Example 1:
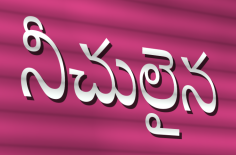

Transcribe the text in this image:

నీచులైన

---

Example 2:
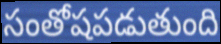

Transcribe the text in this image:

సంతోషపడుతుంది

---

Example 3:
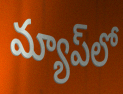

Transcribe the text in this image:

మ్యాప్‌లో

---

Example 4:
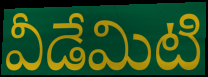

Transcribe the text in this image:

వీడేమిటి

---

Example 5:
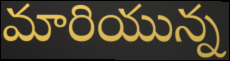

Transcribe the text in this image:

మారియున్న